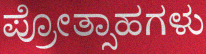
ಪ್ರೋತ್ಸಾಹಗಳು